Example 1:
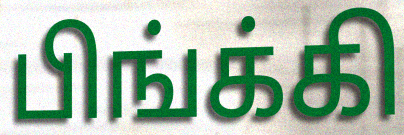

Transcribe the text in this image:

பிங்க்கி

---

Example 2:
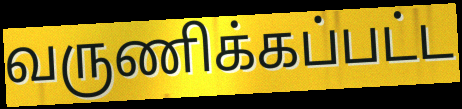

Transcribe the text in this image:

வருணிக்கப்பட்ட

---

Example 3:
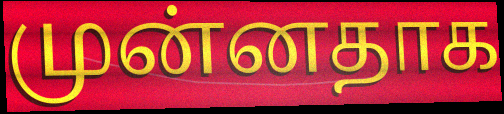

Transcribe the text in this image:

முன்னதாக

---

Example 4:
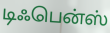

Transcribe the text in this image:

டிஃபென்ஸ்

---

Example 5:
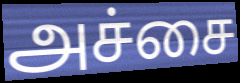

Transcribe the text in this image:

அச்சை